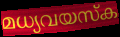
മധ്യവയസ്ക